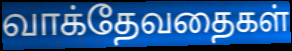
வாக்தேவதைகள்